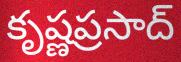
కృష్ణప్రసాద్